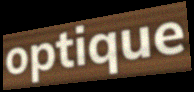
optique